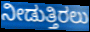
ನೀಡುತ್ತಿರಲು